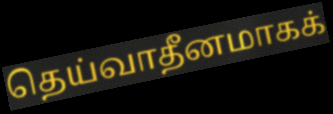
தெய்வாதீனமாகக்